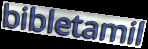
bibletamil